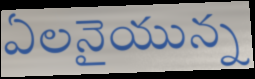
ఏలనైయున్న